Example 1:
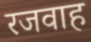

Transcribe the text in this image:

रजवाह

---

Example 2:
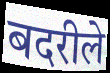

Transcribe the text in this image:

बदरीले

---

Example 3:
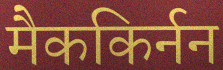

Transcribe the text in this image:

मैककिर्नन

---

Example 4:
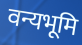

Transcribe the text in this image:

वन्यभूमि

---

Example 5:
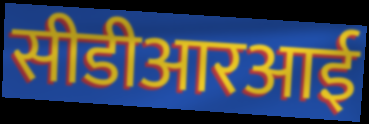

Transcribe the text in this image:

सीडीआरआई